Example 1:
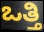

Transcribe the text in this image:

ಒತ್ತಿ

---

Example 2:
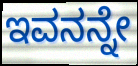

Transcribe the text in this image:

ಇವನನ್ನೇ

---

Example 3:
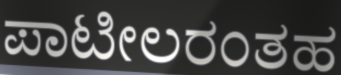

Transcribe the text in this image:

ಪಾಟೀಲರಂತಹ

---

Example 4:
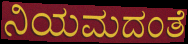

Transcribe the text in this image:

ನಿಯಮದಂತೆ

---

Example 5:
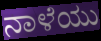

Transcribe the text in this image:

ನಾಳೆಯು